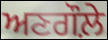
ਅਣਗੌਲ਼ੇ